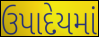
ઉપાદેયમાં